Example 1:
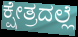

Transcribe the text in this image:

ಕ್ಷೇತ್ರದಲ್ಲೆ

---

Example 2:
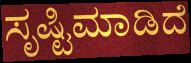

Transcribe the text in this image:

ಸೃಷ್ಟಿಮಾಡಿದೆ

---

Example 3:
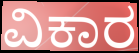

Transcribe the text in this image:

ವಿಕಾರ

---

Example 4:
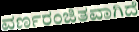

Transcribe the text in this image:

ವರ್ಣರಂಜಿತವಾಗಿದೆ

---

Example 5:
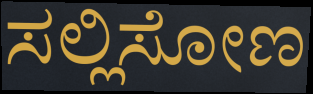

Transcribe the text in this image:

ಸಲ್ಲಿಸೋಣ